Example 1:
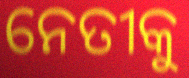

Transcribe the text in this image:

ନେତୀକୁ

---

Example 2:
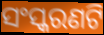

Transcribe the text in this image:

ସଂସ୍କରଣଟି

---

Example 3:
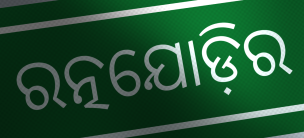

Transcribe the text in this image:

ରତ୍ନଯୋଡ଼ିର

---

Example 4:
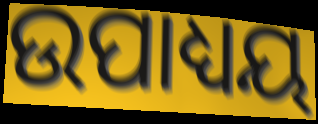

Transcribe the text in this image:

ଉପାଧ୍ୟୟ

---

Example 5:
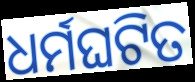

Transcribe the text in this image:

ଧର୍ମଘଟିତ